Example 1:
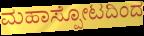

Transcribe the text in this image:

ಮಹಾಸ್ಪೋಟದಿಂದ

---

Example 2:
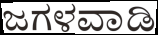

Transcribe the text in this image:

ಜಗಳವಾಡಿ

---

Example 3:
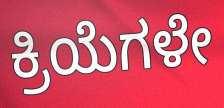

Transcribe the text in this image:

ಕ್ರಿಯೆಗಳೇ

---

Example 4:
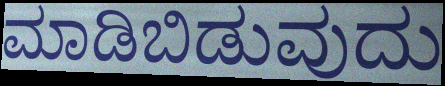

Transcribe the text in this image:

ಮಾಡಿಬಿಡುವುದು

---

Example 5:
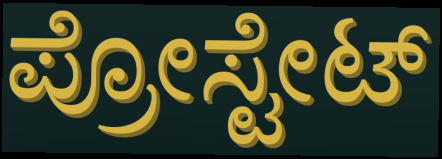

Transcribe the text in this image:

ಪ್ರೋಸ್ಟೇಟ್